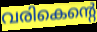
വരികെന്റെ